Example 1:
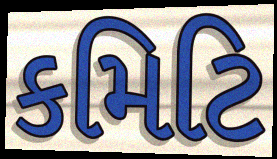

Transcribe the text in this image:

કમિટિ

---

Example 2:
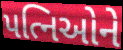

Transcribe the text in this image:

પત્નિઓને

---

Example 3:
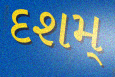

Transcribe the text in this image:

દશમ્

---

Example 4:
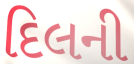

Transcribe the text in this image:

દિલની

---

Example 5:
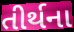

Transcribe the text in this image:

તીર્થના